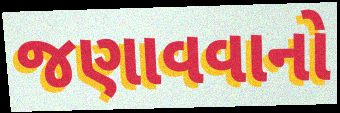
જણાવવાનો